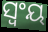
ସ୍ୱଂୟ